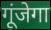
गूंजेगा